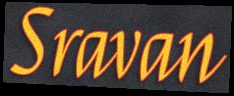
Sravan